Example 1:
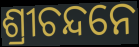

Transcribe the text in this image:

ଶ୍ରୀଚନ୍ଦନେ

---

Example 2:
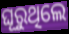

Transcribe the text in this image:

ଘୂରୁଥିଲେ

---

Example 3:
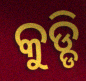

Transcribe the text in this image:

କୁଡ୍ଡି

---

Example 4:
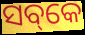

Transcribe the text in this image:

ସବ୍‌କେ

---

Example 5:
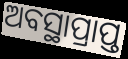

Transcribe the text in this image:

ଅବସ୍ଥାପ୍ରାପ୍ତ